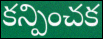
కన్పించక